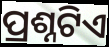
ପ୍ରଶ୍ନଟିଏ